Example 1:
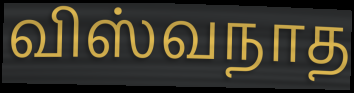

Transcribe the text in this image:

விஸ்வநாத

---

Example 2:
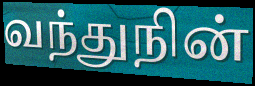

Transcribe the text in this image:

வந்துநின்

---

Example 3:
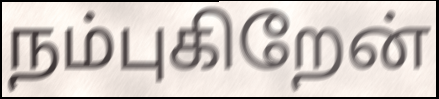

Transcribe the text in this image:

நம்புகிறேன்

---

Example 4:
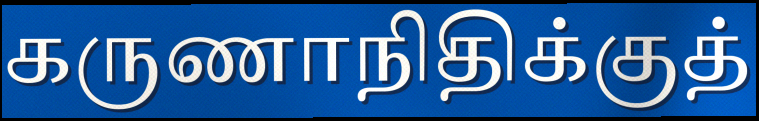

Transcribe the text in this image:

கருணாநிதிக்குத்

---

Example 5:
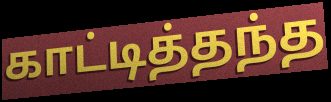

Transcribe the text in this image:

காட்டித்தந்த